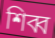
শিব্ব